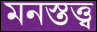
মনস্তত্ত্ব